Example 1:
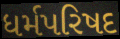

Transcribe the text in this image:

ધર્મપરિષદ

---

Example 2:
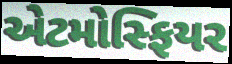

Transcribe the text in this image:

એટમોસ્ફિયર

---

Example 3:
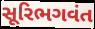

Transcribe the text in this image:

સૂરિભગવંત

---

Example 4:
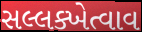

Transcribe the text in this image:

સલ્લક્ખેત્વાવ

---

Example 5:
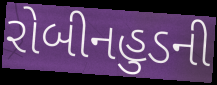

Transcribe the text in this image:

રોબીનહુડની